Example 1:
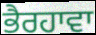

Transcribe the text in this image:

ਭੈਰਹਾਵਾ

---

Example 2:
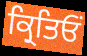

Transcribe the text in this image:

ਕ੍ਰਿਤਿਓਂ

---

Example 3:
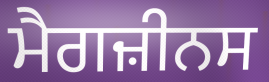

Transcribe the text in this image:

ਮੈਗਜ਼ੀਨਸ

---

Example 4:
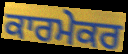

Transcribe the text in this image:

ਕਾਰਮੇਕਰ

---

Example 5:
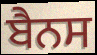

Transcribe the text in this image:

ਬੈਨਸ